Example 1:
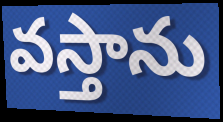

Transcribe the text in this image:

వస్తాను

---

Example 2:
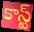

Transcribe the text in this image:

కాస్ట్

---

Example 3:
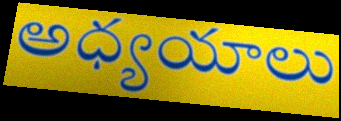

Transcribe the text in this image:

అధ్యయాలు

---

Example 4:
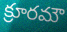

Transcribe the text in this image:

క్రూరమౌ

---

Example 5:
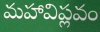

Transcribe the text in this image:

మహావిప్లవం